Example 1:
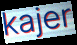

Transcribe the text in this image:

kajer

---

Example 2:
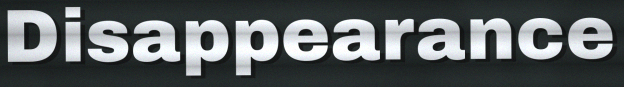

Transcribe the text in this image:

Disappearance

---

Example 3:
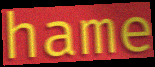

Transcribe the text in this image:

hame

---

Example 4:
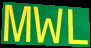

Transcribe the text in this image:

MWL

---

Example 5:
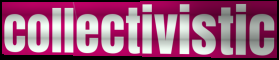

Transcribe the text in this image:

collectivistic